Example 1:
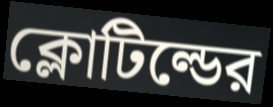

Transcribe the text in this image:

ক্লোটিল্ডের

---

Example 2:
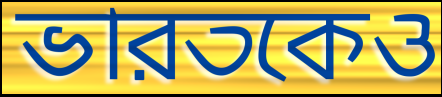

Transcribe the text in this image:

ভারতকেও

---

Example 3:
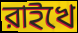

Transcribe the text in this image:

রাইখে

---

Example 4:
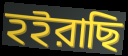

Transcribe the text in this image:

হইরাছি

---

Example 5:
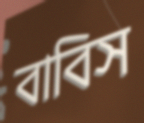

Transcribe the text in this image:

বাবিস